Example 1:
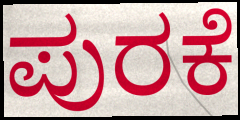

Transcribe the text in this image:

ಪುರಕೆ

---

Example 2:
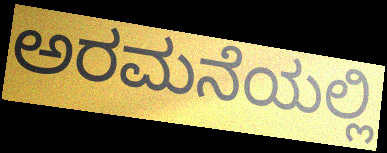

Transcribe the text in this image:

ಅರಮನೆಯಲ್ಲಿ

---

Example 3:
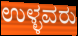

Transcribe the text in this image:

ಉಳ್ಳವರು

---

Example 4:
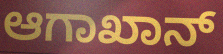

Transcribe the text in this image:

ಆಗಾಖಾನ್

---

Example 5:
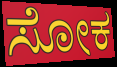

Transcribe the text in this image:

ಸೋಕ